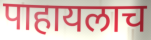
पाहायलाच